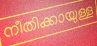
നീതിക്കായുള്ള